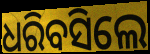
ଧରିବସିଲେ